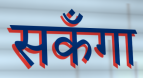
सकँगा